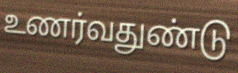
உணர்வதுண்டு